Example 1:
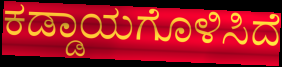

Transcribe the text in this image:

ಕಡ್ಡಾಯಗೊಳಿಸಿದೆ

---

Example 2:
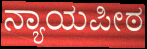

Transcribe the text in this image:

ನ್ಯಾಯಪೀಠ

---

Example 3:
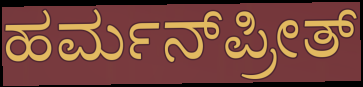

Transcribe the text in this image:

ಹರ್ಮನ್‌ಪ್ರೀತ್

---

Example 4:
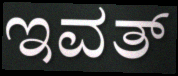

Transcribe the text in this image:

ಇವತ್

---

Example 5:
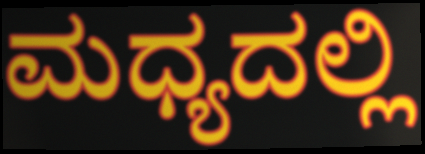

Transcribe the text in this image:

ಮಧ್ಯದಲ್ಲಿ